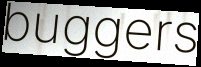
buggers